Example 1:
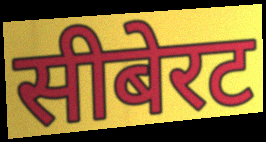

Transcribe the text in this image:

सीबेरट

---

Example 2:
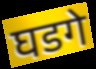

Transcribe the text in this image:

घडगे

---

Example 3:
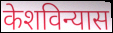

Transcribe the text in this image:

केशविन्यास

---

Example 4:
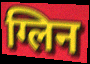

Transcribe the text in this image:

ग्लिन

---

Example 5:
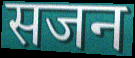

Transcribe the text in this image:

सजन